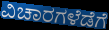
ವಿಚಾರಗಳೆಡೆಗೆ